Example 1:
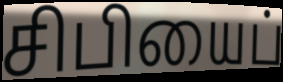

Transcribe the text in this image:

சிபியைப்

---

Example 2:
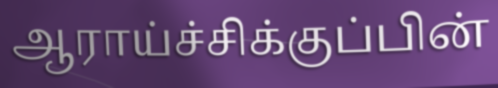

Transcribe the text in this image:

ஆராய்ச்சிக்குப்பின்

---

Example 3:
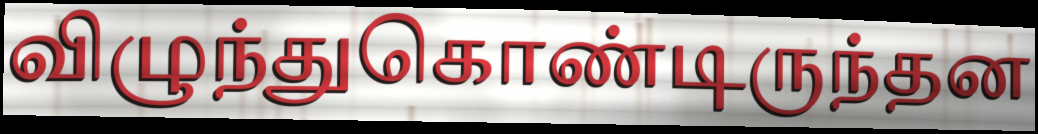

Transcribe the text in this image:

விழுந்துகொண்டிருந்தன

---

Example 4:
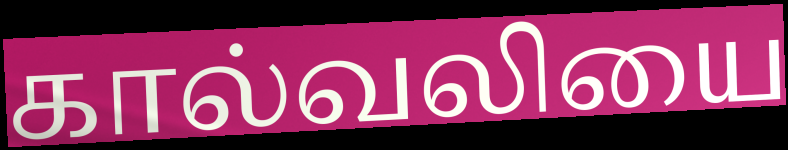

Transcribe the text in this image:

கால்வலியை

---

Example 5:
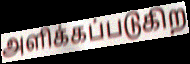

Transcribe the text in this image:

அளிக்கப்படுகிற